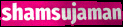
shamsujaman